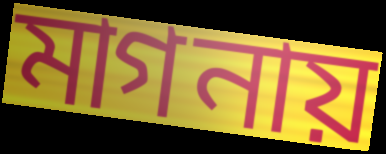
মাগনায়